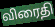
விரைதி